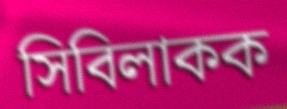
সিবিলাকক